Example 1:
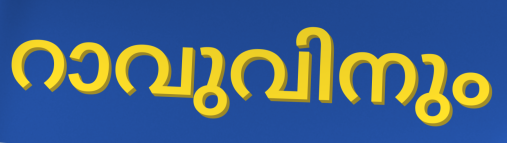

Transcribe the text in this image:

റാവുവിനും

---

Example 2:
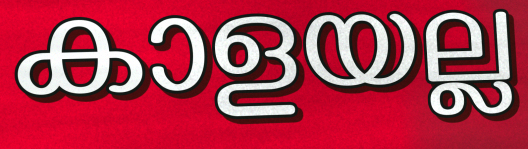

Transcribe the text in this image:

കാളയല്ല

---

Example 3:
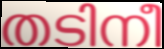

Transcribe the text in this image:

തടിനീ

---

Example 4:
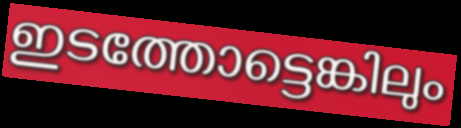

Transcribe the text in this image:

ഇടത്തോട്ടെങ്കിലും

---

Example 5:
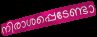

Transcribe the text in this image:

നിരാശപ്പെടേണ്ടാ